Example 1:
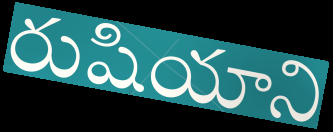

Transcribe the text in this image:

రుషియాని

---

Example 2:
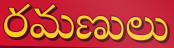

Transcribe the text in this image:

రమణులు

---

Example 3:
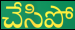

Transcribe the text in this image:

చేసిపో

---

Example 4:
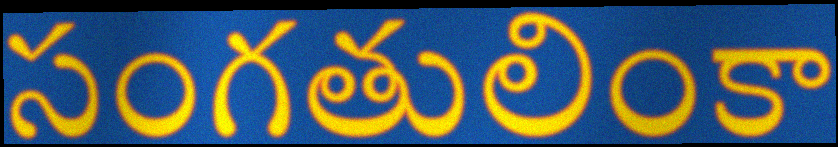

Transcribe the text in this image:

సంగతులింకా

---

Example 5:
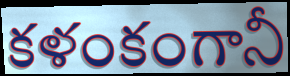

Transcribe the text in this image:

కళంకంగానీ